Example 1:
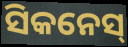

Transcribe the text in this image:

ସିକନେସ୍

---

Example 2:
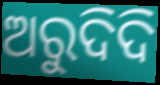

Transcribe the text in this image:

ଅରୁଦିଦି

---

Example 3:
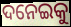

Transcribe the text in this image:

ଦନେଇକୁ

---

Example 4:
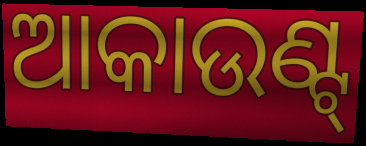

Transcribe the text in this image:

ଆକାଉଣ୍ଟ୍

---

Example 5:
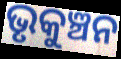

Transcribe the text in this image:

ଭୃକୁଞ୍ଚନ